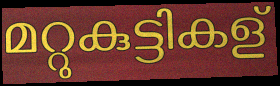
മറ്റുകുട്ടികള്